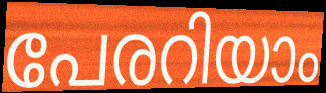
പേരറിയാം